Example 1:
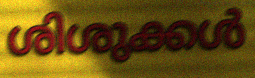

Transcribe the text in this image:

ശിശുക്കൾ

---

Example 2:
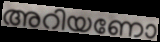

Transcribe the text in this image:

അറിയണോ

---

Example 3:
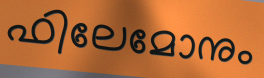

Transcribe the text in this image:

ഫിലേമോനും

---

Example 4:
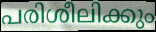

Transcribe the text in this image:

പരിശീലിക്കും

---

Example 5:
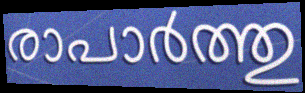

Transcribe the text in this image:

രാപാർത്തു